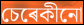
চেৰেকীনো